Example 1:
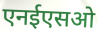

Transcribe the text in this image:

एनईएसओ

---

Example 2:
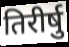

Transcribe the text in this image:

तिरीर्षु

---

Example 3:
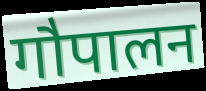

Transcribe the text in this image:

गौपालन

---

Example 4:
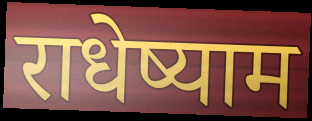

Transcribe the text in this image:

राधेष्याम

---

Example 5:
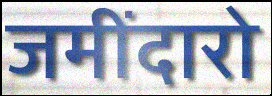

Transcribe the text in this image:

जमींदारो